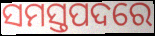
ସମସ୍ତପଦରେ